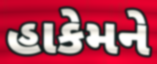
હાકેમને